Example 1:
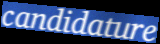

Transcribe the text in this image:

candidature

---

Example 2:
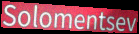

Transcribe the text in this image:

Solomentsev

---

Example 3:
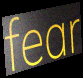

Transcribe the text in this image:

fear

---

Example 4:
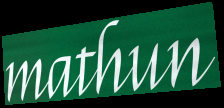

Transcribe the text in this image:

mathun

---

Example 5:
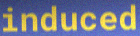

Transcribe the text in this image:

induced